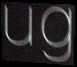
ug